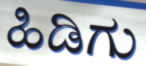
ಹಿಡಿಗು